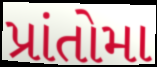
પ્રાંતોમા